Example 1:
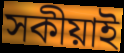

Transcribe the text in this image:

সকীয়াই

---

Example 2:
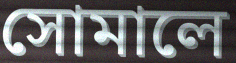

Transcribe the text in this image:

সোমালে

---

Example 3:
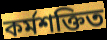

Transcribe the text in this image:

কৰ্মশক্তিত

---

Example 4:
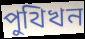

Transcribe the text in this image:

পুথিখন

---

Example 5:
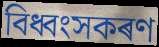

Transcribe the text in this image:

বিধ্বংসকৰণ